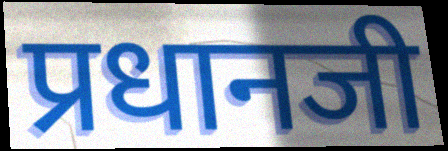
प्रधानजी